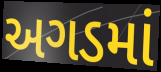
અગડમાં